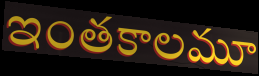
ఇంతకాలమూ